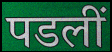
पडलीं